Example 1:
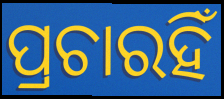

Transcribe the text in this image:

ପ୍ରଚାରହିଁ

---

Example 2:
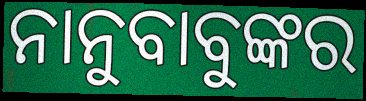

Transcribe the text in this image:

ନାନୁବାବୁଙ୍କର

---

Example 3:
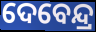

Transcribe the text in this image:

ଦେବେନ୍ଦ୍ର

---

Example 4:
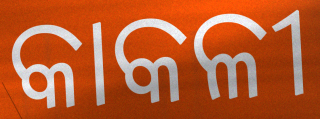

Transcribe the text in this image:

କାକଳୀ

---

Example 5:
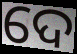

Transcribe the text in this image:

ଦେ